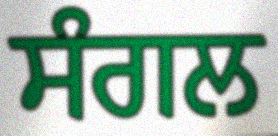
ਸੰਗਲ